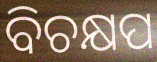
ବିଚକ୍ଷପ